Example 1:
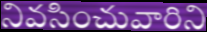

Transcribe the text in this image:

నివసించువారిని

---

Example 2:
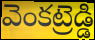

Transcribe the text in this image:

వెంకట్రెడ్డి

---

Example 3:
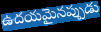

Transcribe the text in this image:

ఉదయమైనప్పుడు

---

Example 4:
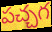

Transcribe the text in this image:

పచ్చగ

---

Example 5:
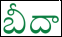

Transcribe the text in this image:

బీదా